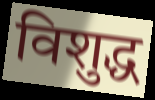
विशुद्ध